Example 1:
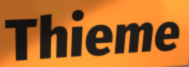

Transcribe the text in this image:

Thieme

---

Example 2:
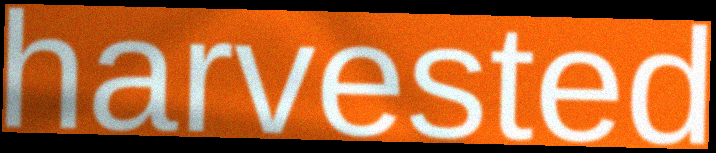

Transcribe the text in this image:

harvested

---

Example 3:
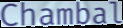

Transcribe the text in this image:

Chambal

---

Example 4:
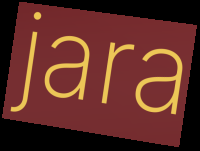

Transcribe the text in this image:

jara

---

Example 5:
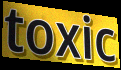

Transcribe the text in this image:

toxic